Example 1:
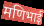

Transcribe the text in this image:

मणिभाई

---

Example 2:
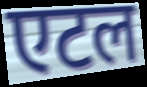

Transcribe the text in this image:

एटल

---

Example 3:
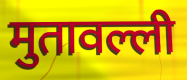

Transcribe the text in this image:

मुतावल्ली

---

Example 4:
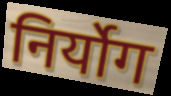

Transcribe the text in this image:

निर्योग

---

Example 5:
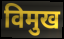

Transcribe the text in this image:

विमुख